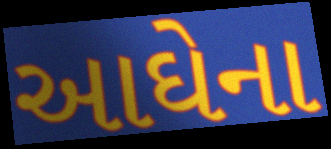
આઘેના